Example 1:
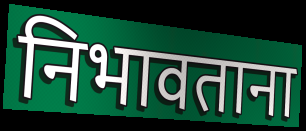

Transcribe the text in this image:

निभावताना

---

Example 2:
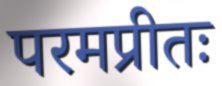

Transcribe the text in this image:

परमप्रीतः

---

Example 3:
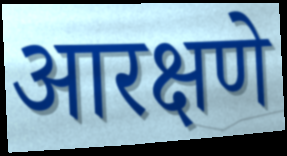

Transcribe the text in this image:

आरक्षणे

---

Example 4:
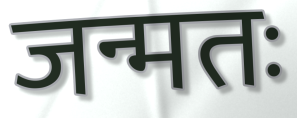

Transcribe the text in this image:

जन्मतः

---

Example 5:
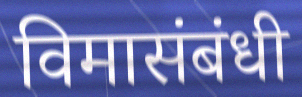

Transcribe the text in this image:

विमासंबंधी